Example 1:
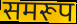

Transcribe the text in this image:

समरूप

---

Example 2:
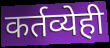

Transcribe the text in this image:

कर्तव्येही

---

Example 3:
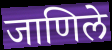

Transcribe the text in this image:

जाणिले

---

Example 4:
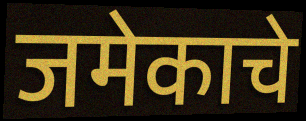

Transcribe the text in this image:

जमेकाचे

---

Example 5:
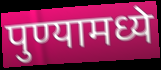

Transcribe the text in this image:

पुण्यामध्ये